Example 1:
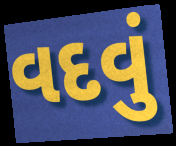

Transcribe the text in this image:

વદવું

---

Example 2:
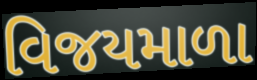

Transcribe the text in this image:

વિજયમાળા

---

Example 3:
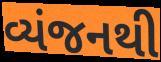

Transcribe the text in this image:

વ્યંજનથી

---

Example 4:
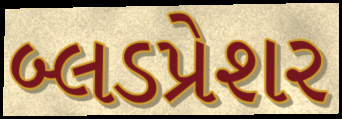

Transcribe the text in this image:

બ્લડપ્રેશર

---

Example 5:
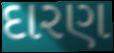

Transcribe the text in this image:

દારણ